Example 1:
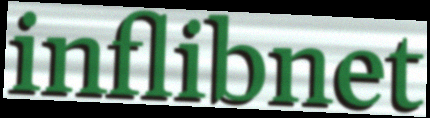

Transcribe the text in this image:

inflibnet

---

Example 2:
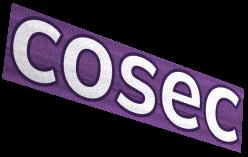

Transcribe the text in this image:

cosec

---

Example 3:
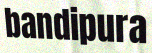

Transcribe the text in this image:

bandipura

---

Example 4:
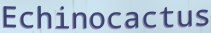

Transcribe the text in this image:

Echinocactus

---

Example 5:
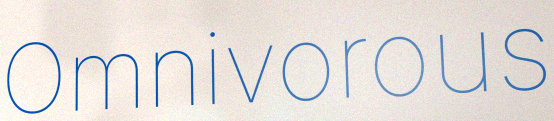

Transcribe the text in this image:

Omnivorous